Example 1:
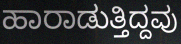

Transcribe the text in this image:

ಹಾರಾಡುತ್ತಿದ್ದವು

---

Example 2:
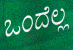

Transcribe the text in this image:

ಒಂದೆಲ್ಲ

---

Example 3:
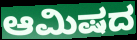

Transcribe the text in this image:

ಆಮಿಷದ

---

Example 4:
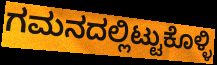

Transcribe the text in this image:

ಗಮನದಲ್ಲಿಟ್ಟುಕೊಳ್ಳಿ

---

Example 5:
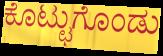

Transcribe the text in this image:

ಕೊಟ್ಟುಗೊಂಡು